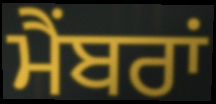
ਮੈਂਬਰਾਂ